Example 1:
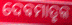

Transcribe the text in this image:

ଦେବମାତୃକ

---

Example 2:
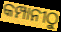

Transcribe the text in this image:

କମ୍ପାନୀଠୁ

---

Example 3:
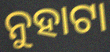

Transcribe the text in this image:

ନୁହାଟା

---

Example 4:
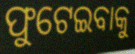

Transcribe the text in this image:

ଫୁଟେଇବାକୁ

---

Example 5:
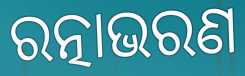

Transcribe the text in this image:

ରତ୍ନାଭରଣ